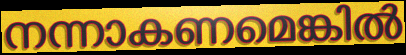
നന്നാകണമെങ്കിൽ